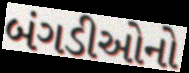
બંગડીઓનો